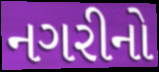
નગરીનો